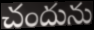
చందును